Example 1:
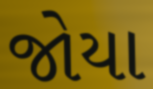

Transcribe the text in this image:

જોયા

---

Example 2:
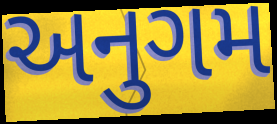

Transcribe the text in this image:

અનુગમ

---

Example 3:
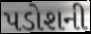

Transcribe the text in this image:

પડોશની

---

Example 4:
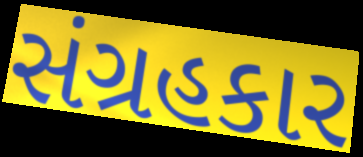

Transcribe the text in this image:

સંગ્રહકાર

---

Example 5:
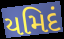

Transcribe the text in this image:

યમિદં